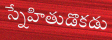
స్నేహితుడొకడు